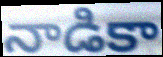
నాడికా